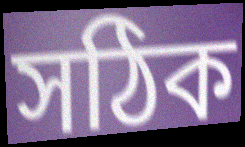
সঠিক